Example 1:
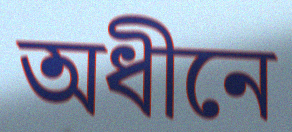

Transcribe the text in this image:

অধীনে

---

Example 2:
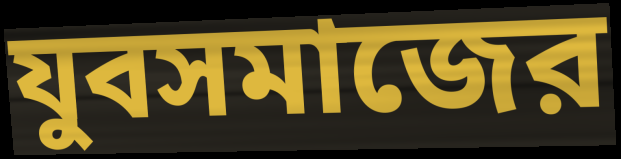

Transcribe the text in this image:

যুবসমাজের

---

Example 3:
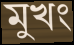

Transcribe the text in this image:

মুখং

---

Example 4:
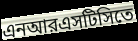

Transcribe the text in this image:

এনআরএসটিসিতে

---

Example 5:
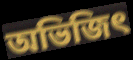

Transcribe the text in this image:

অভিজিৎ